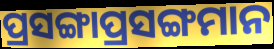
ପ୍ରସଙ୍ଗାପ୍ରସଙ୍ଗମାନ